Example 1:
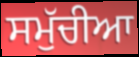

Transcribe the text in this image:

ਸਮੁੱਚੀਆ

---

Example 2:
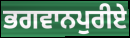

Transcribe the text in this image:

ਭਗਵਾਨਪੁਰੀਏ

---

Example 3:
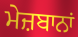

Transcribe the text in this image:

ਮੇਜ਼ਬਾਨਾਂ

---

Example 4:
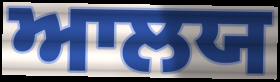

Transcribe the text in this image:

ਆਲਯ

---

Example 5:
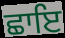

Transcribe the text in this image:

ਛਾਇ